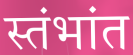
स्तंभांत